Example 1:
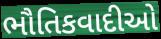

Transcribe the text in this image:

ભૌતિકવાદીઓ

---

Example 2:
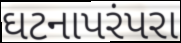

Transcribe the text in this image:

ઘટનાપરંપરા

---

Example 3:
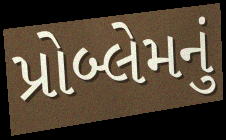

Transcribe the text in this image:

પ્રોબ્લેમનું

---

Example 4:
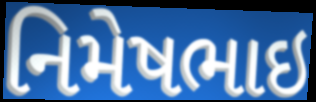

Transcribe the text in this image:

નિમેષભાઇ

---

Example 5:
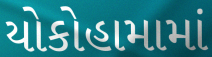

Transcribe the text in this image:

યોકોહામામાં